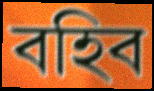
বহিব